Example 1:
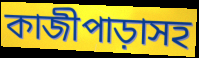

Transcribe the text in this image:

কাজীপাড়াসহ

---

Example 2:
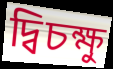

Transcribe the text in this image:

দ্বিচক্ষু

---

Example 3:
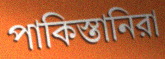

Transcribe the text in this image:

পাকিস্তানিরা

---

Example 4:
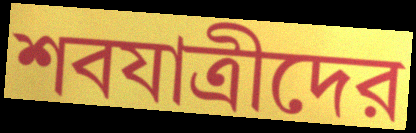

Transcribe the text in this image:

শবযাত্রীদের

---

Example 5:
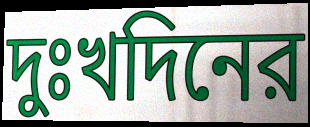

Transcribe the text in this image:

দুঃখদিনের